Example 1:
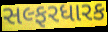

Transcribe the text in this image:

સલ્ફરધારક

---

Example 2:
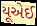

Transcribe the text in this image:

યૂએઈ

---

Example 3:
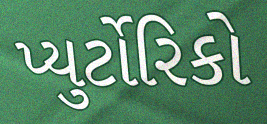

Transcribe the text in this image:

પ્યુર્ટોરિકો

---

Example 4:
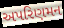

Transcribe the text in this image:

અપરિણમન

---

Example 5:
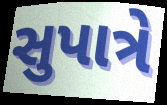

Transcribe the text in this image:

સુપાત્રે